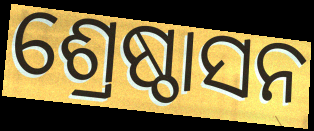
ଶ୍ରେଷ୍ଠାସନ